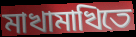
মাখামাখিতে